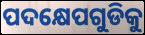
ପଦକ୍ଷେପଗୁଡିକୁ